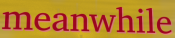
meanwhile